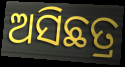
ଅସିଛତ୍ର